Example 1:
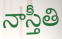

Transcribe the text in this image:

నాస్తీతి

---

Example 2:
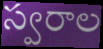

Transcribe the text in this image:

స్వరాల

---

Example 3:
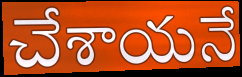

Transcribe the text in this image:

చేశాయనే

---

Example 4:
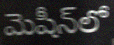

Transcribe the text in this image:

మెషీన్‌లో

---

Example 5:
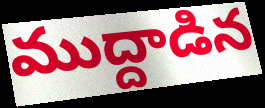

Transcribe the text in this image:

ముద్దాడిన